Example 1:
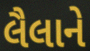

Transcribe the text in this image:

લૈલાને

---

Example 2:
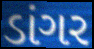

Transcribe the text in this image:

ડાંગર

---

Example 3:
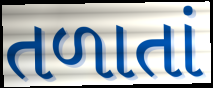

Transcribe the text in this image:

તળાતાં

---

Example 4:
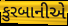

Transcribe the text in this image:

કુરબાનીએ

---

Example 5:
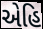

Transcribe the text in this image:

એહિ